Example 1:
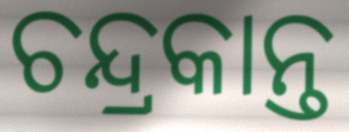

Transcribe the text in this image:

ଚନ୍ଦ୍ରକାନ୍ତ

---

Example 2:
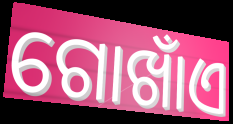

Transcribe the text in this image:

ଗୋଖାଁଏ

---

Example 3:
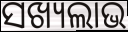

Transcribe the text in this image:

ସଖ୍ୟଲାଭ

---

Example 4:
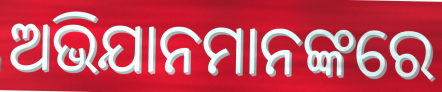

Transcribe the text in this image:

ଅଭିଯାନମାନଙ୍କରେ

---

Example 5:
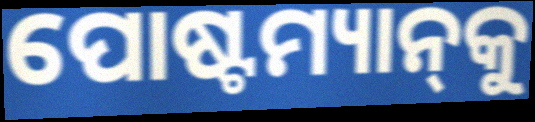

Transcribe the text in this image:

ପୋଷ୍ଟମ୍ୟାନ୍‌କୁ